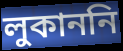
লুকাননি